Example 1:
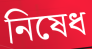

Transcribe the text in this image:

নিষেধ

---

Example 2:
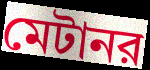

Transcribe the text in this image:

মেটানর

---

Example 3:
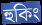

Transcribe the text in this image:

হুকিং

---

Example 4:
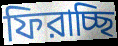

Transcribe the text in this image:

ফিরাচ্ছি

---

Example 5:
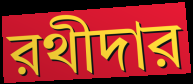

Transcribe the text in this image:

রথীদার